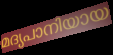
മദ്യപാനിയായ